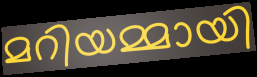
മറിയമ്മായി